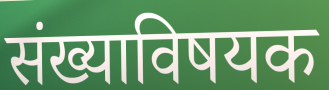
संख्याविषयक